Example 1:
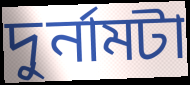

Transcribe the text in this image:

দুর্নামটা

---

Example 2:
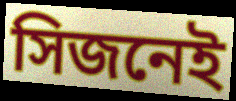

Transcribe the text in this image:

সিজনেই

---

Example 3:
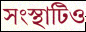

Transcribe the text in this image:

সংস্থাটিও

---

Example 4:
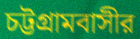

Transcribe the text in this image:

চট্টগ্রামবাসীর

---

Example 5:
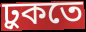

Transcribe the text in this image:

ঢ়ুকতে